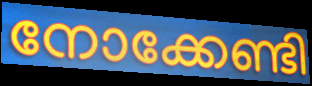
നോക്കേണ്ടി